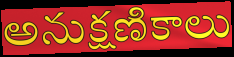
అనుక్షణికాలు